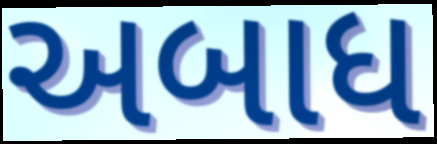
અબાધ